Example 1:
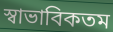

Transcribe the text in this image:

স্বাভাবিকতম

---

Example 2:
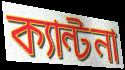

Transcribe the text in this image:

ক্যান্টনা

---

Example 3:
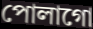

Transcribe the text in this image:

পোলাগো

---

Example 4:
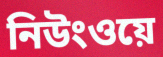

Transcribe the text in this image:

নিউংওয়ে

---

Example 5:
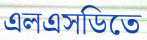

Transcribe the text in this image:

এলএসডিতে